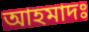
আহমাদঃ